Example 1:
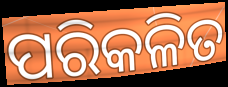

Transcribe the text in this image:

ପରିକଳିତ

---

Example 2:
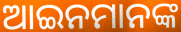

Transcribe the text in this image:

ଆଇନମାନଙ୍କ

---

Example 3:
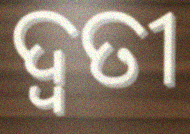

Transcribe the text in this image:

ଦ୍ଵତୀ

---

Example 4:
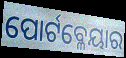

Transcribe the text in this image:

ପୋର୍ଟବ୍ଳେୟାର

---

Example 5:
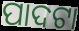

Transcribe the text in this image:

ପାଦଟା